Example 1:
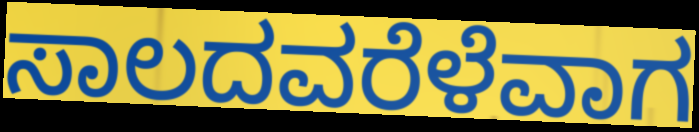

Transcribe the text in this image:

ಸಾಲದವರೆಳೆವಾಗ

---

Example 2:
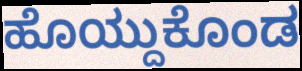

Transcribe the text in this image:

ಹೊಯ್ದುಕೊಂಡ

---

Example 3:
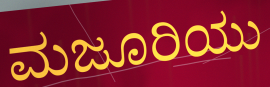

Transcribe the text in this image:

ಮಜೂರಿಯು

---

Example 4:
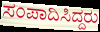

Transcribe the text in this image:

ಸಂಪಾದಿಸಿದ್ದರು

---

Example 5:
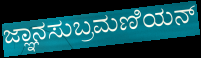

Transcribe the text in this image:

ಜ್ಞಾನಸುಬ್ರಮಣಿಯನ್